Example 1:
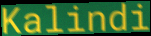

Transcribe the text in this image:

Kalindi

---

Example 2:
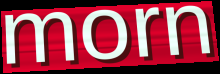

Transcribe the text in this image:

morn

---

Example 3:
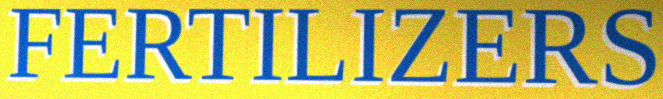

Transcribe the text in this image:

FERTILIZERS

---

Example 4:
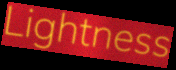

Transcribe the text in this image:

Lightness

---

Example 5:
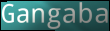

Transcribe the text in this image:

Gangaba